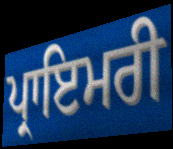
ਪ੍ਰਾਇਮਰੀ